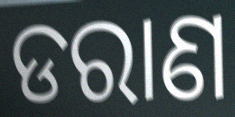
ଡରାଣ